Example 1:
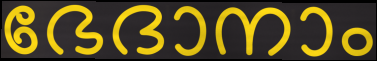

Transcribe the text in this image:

ഭേദാനാം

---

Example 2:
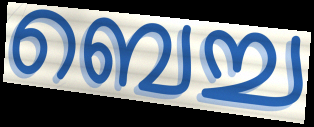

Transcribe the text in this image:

ബെച്ച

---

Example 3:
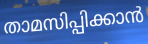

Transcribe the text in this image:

താമസിപ്പിക്കാൻ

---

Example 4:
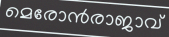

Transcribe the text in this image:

മെരോൻരാജാവ്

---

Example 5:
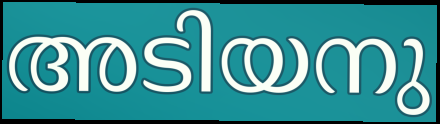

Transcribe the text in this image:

അടിയനു